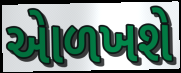
એાળખશે